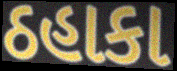
ઠહાકા